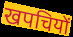
खपचियों